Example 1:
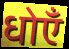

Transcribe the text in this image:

धोएँ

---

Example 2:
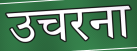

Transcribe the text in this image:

उचरना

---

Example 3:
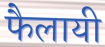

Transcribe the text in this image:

फैलायी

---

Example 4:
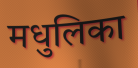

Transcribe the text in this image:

मधुलिका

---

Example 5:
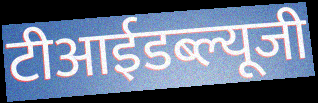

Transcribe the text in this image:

टीआईडब्ल्यूजी